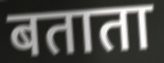
बताता